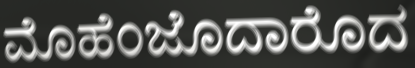
ಮೊಹೆಂಜೊದಾರೊದ